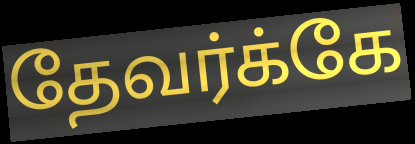
தேவர்க்கே